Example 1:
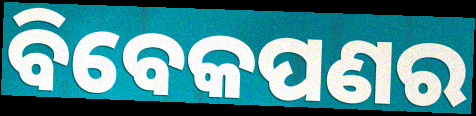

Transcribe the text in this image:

ବିବେକପଣର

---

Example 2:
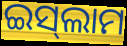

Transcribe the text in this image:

ଇସ୍‌ଲାମ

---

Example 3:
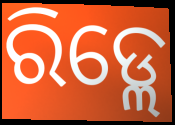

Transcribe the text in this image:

ରିଡ୍ଲେ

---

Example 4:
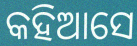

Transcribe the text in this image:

କହିଆସେ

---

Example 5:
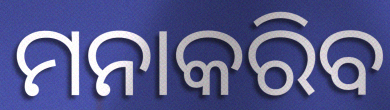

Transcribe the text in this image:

ମନାକରିବ